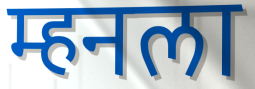
म्हनला